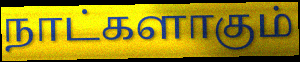
நாட்களாகும்